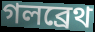
গলব্রেথ